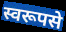
स्वरूपसे